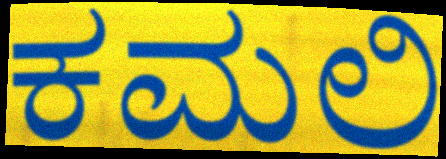
ಕಮಲಿ